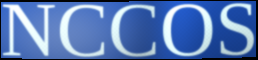
NCCOS